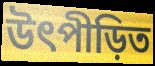
উৎপীড়িত